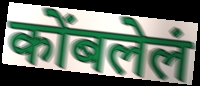
कोंबलेलं